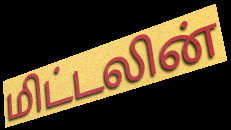
மிட்டலின்